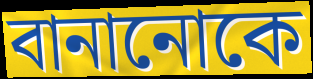
বানানোকে